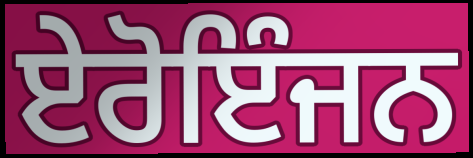
ਏਰੋਇੰਜਨ